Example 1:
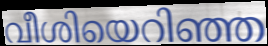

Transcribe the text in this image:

വീശിയെറിഞ്ഞ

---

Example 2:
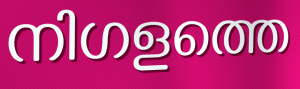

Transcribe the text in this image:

നിഗളത്തെ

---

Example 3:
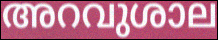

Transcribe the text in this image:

അറവുശാല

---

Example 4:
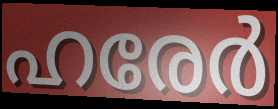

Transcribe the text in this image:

ഹരേർ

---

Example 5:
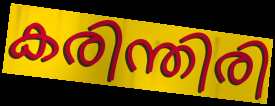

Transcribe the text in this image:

കരിന്തിരി